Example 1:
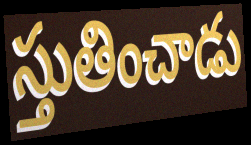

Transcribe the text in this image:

స్తుతించాడు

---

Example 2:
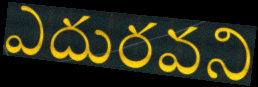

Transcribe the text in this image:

ఎదురవని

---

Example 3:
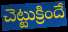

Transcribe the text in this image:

చెట్టుక్రిందే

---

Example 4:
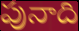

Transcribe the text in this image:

పునాది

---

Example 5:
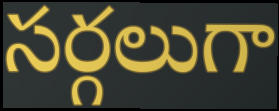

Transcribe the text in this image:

సర్గలుగా